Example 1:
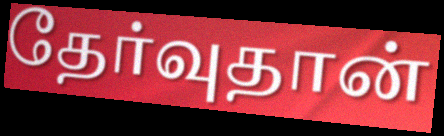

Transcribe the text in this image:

தேர்வுதான்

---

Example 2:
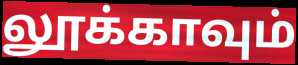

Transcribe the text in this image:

லூக்காவும்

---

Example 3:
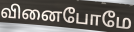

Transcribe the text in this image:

வினைபோமே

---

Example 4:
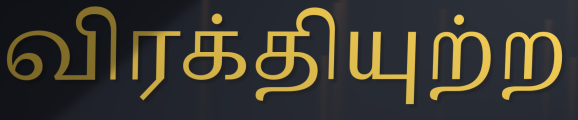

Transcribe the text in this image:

விரக்தியுற்ற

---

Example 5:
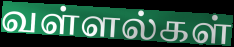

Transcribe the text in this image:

வள்ளல்கள்